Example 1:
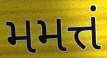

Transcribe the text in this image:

મમત્તં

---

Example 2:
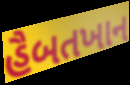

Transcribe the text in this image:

હૈબતખાન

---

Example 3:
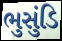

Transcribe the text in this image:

ભુસુંડિ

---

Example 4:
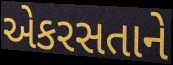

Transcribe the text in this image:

એકરસતાને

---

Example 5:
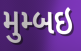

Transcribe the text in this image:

મુમ્બઇ